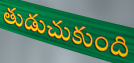
తుడుచుకుంది